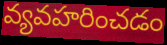
వ్యవహరించడం